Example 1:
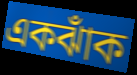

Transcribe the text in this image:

একঝাঁক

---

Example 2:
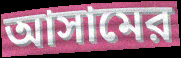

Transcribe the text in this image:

আসামের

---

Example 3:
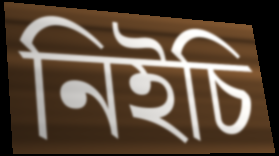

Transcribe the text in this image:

নিইচি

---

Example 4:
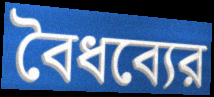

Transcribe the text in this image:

বৈধব্যের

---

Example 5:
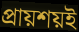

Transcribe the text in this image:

প্রায়শয়ই